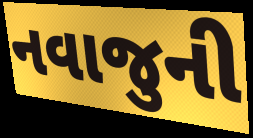
નવાજુની